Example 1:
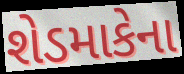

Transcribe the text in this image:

શેડમાકેના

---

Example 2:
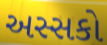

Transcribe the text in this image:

અસ્સકો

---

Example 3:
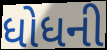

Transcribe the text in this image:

ધોધની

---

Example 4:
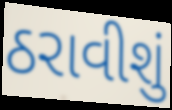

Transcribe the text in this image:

ઠરાવીશું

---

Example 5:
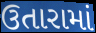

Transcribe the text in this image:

ઉતારામાં